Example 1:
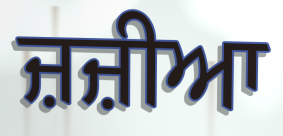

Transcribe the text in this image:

ਜ਼ਜ਼ੀਆ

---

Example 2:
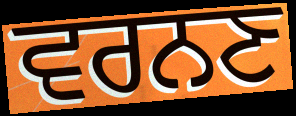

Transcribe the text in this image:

ਵਰਨਣ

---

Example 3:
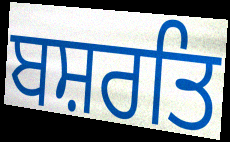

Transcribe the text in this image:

ਬਸ਼ਰਤਿ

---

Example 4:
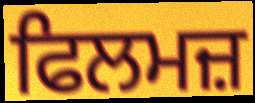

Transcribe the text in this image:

ਫਿਲਮਜ਼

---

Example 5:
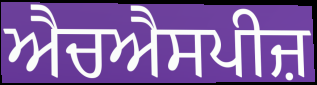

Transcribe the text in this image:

ਐਚਐਸਪੀਜ਼